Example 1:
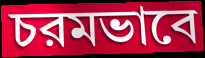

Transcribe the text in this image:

চরমভাবে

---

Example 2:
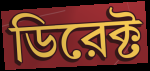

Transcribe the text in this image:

ডিরেক্ট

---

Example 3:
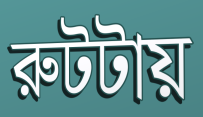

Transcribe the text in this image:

রুটটায়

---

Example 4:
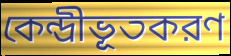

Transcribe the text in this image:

কেন্দ্রীভূতকরণ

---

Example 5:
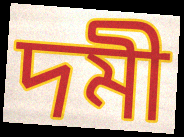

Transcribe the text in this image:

দমী